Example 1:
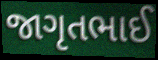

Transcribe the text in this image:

જાગૃતભાઈ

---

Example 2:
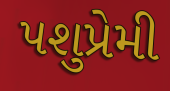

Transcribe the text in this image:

પશુપ્રેમી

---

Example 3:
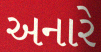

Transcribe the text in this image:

અનારે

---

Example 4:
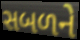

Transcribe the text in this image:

સબળને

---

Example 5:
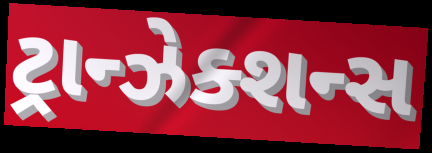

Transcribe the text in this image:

ટ્રાન્ઝેક્શન્સ